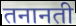
तनानती